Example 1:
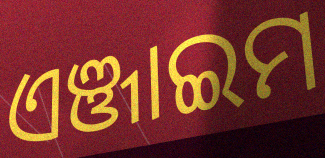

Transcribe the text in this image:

ଏଞ୍ଜାଇମ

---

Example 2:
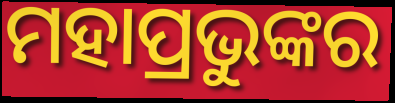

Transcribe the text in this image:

ମହାପ୍ରଭୁଙ୍କର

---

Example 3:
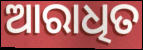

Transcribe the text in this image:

ଆରାଧିତ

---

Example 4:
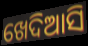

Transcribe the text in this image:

ଖେଦିଆସି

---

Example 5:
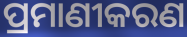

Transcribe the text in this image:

ପ୍ରମାଣୀକରଣ